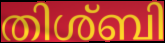
തിശ്ബി